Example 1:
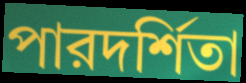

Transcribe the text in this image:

পারদর্শিতা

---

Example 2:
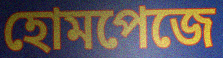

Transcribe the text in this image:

হোমপেজে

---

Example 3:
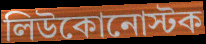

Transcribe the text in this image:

লিউকোনোস্টক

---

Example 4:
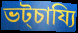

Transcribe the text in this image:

ভট্চায্যি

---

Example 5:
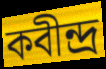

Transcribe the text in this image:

কবীন্দ্র